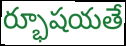
ర్భూషయతే